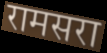
रामसरा